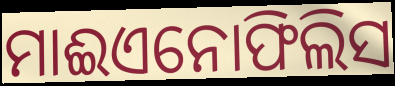
ମାଈଏନୋଫିଲିସ